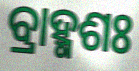
ବ୍ରାହ୍ମଶଃ